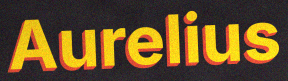
Aurelius